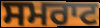
ਸਮਰਾਟ